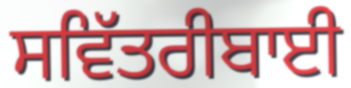
ਸਵਿੱਤਰੀਬਾਈ